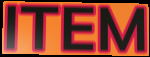
ITEM